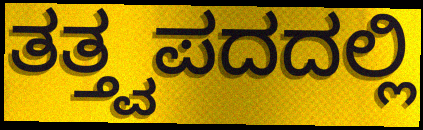
ತತ್ತ್ವಪದದಲ್ಲಿ